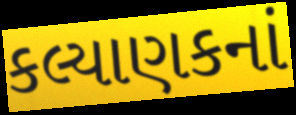
કલ્યાણકનાં